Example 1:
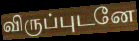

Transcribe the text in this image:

விருப்புடனே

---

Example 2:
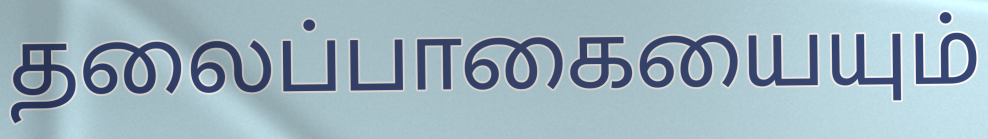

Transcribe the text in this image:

தலைப்பாகையையும்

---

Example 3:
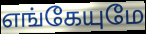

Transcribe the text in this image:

எங்கேயுமே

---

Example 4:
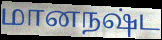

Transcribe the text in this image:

மானநஷ்ட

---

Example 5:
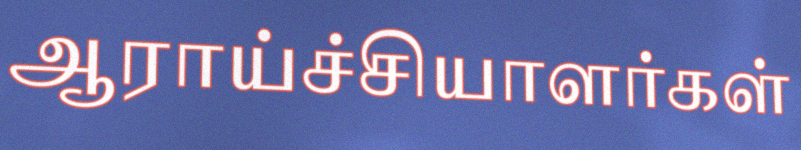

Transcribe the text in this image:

ஆராய்ச்சியாளர்கள்